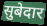
सुबेदार